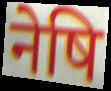
नेषि